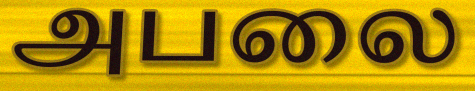
அபலை